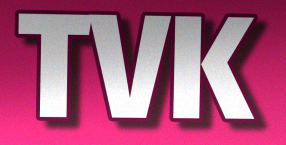
TVK